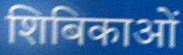
शिबिकाओं